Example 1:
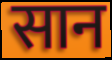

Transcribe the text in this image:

सान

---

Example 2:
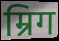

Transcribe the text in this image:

म्रिग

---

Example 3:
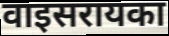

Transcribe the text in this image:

वाइसरायका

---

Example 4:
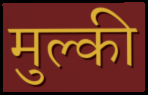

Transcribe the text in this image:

मुल्की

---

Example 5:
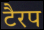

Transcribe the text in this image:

टैरप